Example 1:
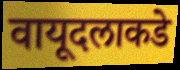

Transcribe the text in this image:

वायूदलाकडे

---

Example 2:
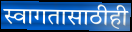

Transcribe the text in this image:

स्वागतासाठीही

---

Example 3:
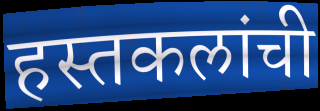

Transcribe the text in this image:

हस्तकलांची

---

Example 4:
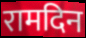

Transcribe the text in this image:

रामदिन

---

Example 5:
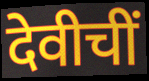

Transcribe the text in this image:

देवीचीं